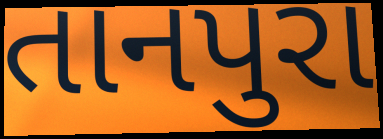
તાનપુરા